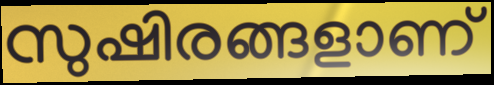
സുഷിരങ്ങളാണ്